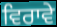
ਵਿਰਾਵੇ